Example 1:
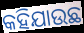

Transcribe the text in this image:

କହିଯାଉଛ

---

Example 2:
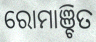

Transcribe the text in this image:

ରୋମାଞ୍ଚିତ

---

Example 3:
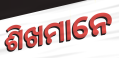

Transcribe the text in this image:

ଶିଖମାନେ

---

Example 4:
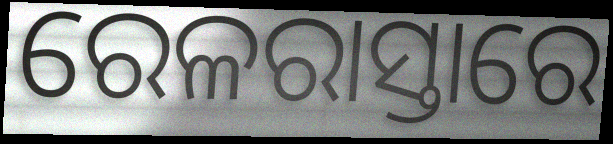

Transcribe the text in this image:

ରେଳରାସ୍ତାରେ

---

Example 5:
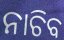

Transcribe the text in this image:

ନାଚିବ